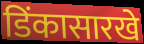
डिंकासारखे